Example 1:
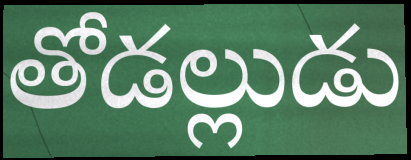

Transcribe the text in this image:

తోడల్లుడు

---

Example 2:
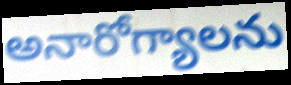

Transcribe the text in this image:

అనారోగ్యాలను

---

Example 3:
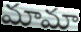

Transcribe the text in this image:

మామా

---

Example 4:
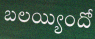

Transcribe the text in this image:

బలయ్యిందో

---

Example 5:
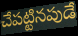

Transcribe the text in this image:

చేపట్టినపుడే